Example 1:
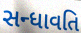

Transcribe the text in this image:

સન્ધાવતિ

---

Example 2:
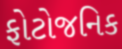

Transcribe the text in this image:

ફોટોજનિક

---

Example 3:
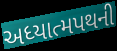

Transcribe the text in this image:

અધ્યાત્મપથની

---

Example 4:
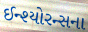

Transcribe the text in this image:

ઈન્શ્યોરન્સના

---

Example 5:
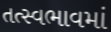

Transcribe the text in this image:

તત્સ્વભાવમાં